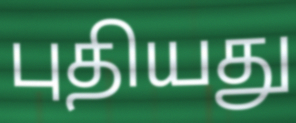
புதியது